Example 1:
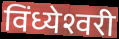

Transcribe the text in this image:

विंध्येश्वरी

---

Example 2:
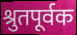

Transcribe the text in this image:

श्रुतपूर्वक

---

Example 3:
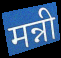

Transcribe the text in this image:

मन्नी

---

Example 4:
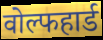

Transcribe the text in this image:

वोल्फहार्ड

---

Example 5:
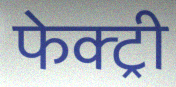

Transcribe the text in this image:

फेक्ट्री